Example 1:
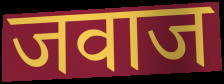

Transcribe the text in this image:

जवाज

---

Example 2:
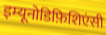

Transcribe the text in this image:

इम्यूनोडिफ़िशिएंसी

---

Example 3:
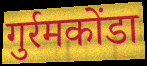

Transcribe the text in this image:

गुर्रमकोंडा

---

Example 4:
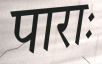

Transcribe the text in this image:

पाराः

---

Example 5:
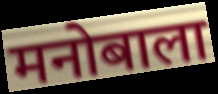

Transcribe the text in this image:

मनोबाला